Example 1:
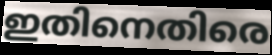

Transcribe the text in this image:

ഇതിനെതിരെ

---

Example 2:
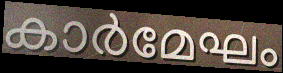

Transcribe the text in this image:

കാർമേഘം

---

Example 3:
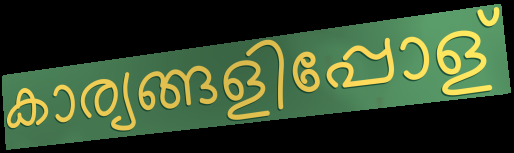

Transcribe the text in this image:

കാര്യങ്ങളിപ്പോള്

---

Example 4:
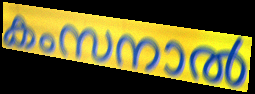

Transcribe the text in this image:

കംസനാൽ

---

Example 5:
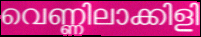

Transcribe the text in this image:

വെണ്ണിലാക്കിളി